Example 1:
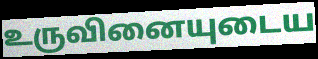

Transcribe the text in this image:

உருவினையுடைய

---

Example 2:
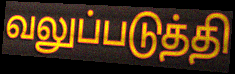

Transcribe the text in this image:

வலுப்படுத்தி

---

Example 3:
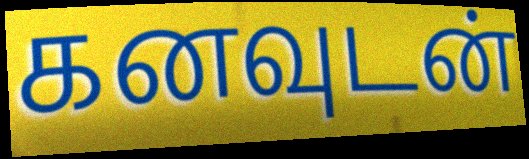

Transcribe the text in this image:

கனவுடன்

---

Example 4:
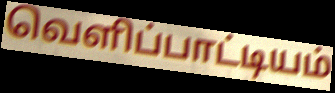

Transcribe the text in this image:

வெளிப்பாட்டியம்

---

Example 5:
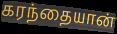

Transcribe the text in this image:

கரந்தையான்